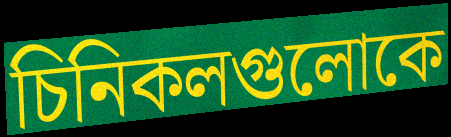
চিনিকলগুলোকে